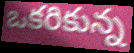
ఒకరికున్న